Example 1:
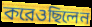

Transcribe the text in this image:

করেওছিলেন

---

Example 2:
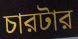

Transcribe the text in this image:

চারটার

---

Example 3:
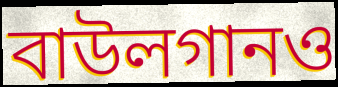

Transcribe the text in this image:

বাউলগানও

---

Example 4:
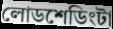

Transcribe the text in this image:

লোডশেডিংটা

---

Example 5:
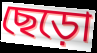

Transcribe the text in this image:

ছেড়ো